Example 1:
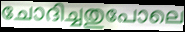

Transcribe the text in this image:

ചോദിച്ചതുപോലെ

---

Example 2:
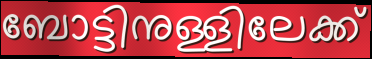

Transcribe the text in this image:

ബോട്ടിനുള്ളിലേക്ക്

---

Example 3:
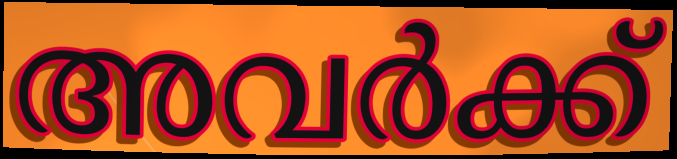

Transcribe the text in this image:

അവർക്ക്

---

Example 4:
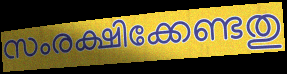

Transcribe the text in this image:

സംരക്ഷിക്കേണ്ടതു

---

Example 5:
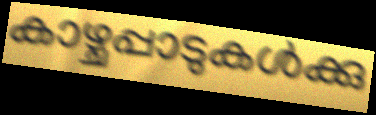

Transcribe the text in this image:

കാഴ്ചപ്പാടുകൾക്കു